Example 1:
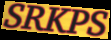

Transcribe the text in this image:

SRKPS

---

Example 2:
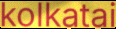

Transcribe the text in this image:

kolkatai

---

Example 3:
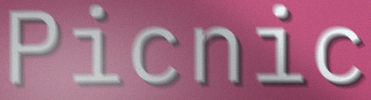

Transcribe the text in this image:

Picnic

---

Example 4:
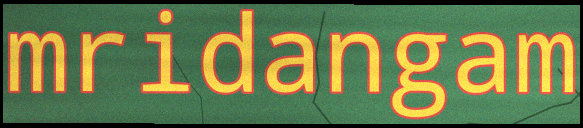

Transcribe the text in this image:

mridangam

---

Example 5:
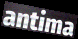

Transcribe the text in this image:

antima